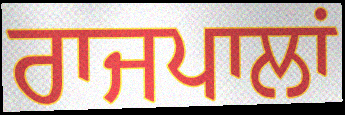
ਰਾਜਪਾਲਾਂ